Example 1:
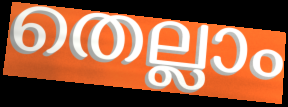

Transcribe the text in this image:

തെല്ലാം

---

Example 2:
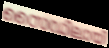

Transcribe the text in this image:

സൈഡിലായി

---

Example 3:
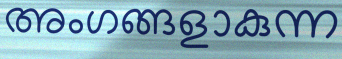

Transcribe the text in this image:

അംഗങ്ങളാകുന്ന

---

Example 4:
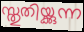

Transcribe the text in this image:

സ്തുതിയ്ക്കുന്ന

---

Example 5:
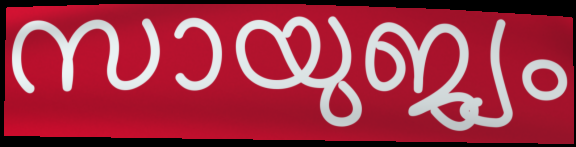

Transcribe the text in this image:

സായുജ്യം